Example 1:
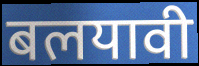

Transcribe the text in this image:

बलयावी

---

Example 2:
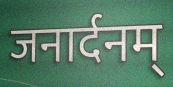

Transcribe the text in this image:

जनार्दनम्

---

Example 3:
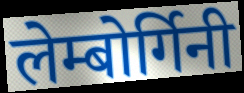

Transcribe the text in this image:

लेम्बोर्गिनी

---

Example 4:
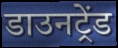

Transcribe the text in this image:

डाउनट्रेंड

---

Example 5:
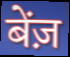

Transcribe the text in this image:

बेंज़